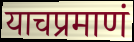
याचप्रमाणं